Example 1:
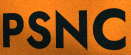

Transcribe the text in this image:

PSNC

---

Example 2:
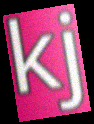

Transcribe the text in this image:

kj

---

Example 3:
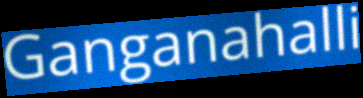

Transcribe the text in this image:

Ganganahalli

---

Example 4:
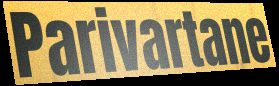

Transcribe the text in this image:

Parivartane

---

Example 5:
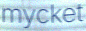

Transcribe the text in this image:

mycket